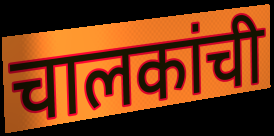
चालकांची